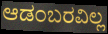
ಆಡಂಬರವಿಲ್ಲ